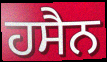
ਹਸੈਨ